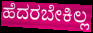
ಹೆದರಬೇಕಿಲ್ಲ